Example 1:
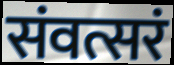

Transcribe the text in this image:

संवत्सरं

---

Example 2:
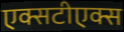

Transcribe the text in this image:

एक्सटीएक्स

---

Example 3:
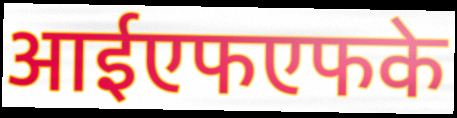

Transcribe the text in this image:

आईएफएफके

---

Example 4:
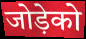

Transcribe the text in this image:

जोड़ेको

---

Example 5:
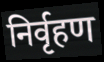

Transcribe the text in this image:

निर्वृहण